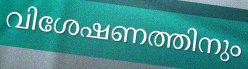
വിശേഷണത്തിനും